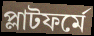
প্লাটফর্মে